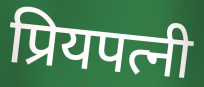
प्रियपत्नी